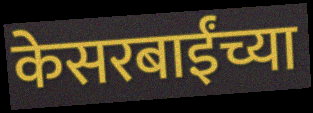
केसरबाईंच्या